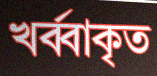
খর্ব্বাকৃত